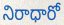
నిరాధారో